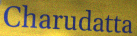
Charudatta